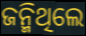
ଜନ୍ମିଥିଲେ